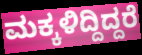
ಮಕ್ಕಳಿದ್ದಿದ್ದರೆ